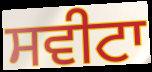
ਸਵੀਟਾ